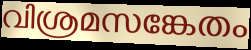
വിശ്രമസങ്കേതം